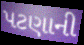
પટણાની